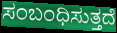
ಸಂಬಂಧಿಸುತ್ತದೆ